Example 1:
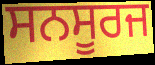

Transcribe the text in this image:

ਸਨਸੂਰਜ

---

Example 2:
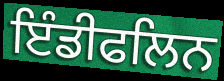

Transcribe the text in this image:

ਇੰਡੀਫਲਿਨ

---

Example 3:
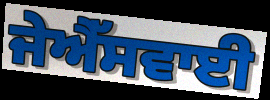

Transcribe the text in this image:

ਜੇਐੱਸਵਾਈ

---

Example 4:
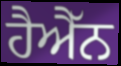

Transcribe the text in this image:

ਹੈਐੱਨ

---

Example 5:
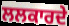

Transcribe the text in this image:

ਲਲਕਾਰਦੇ